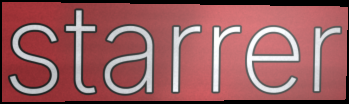
starrer